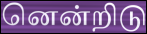
னென்றிடு